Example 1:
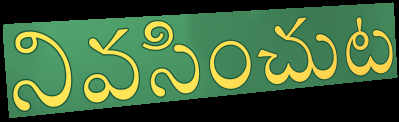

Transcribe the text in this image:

నివసించుట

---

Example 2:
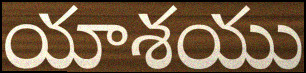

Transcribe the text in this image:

యాశయు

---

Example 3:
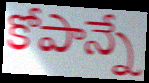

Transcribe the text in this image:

కోపాన్నే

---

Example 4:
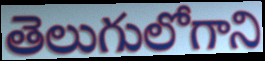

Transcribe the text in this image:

తెలుగులోగాని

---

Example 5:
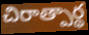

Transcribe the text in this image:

చిరాత్పార్థ